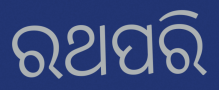
ରଥପରି